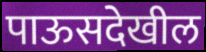
पाऊसदेखील